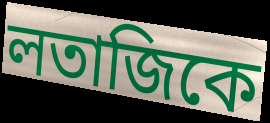
লতাজিকে